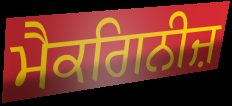
ਮੈਕਗਿਨੀਜ਼